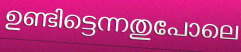
ഉണ്ടിട്ടെന്നതുപോലെ